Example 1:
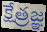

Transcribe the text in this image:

క్షేత్రజ్ఞ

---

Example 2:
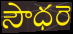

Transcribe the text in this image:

సౌధరె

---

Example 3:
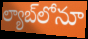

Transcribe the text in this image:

ల్యాబ్‌లోనూ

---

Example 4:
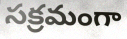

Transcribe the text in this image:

సక్రమంగా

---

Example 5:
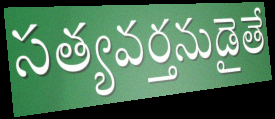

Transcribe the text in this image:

సత్యవర్తనుడైతే